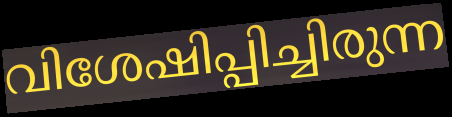
വിശേഷിപ്പിച്ചിരുന്ന